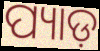
ପ୍ୟାଡ଼